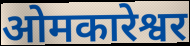
ओमकारेश्वर